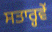
ਸਤਾਰ੍ਹਵੇਂ